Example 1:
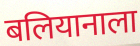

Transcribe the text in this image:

बलियानाला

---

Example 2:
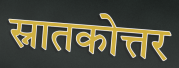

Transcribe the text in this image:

स्नातकोत्तर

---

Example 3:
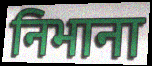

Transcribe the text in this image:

निभाना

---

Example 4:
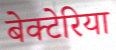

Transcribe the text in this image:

बेक्टेरिया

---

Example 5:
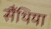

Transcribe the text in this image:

सैंथिया